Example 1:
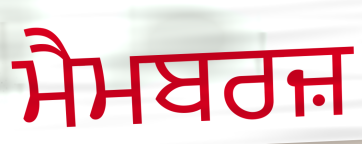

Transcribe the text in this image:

ਮੈਮਬਰਜ਼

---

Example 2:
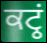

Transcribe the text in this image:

ਕਟ੍ਠਂ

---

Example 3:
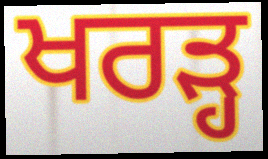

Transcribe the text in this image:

ਖਰੜ੍ਹ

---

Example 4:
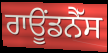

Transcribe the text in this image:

ਰਾਊਂਡਨੈੱਸ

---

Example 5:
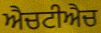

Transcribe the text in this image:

ਐਚਟੀਐਚ